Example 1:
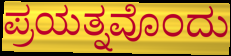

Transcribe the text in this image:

ಪ್ರಯತ್ನವೊಂದು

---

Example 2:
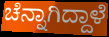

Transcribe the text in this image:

ಚೆನ್ನಾಗಿದ್ದಾಳೆ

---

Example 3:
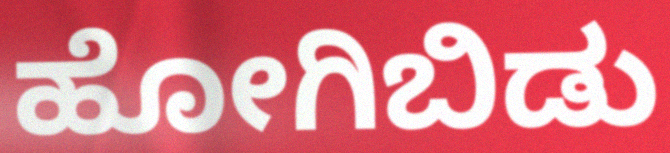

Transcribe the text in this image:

ಹೋಗಿಬಿಡು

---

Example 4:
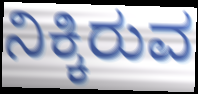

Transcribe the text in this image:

ನಿಕ್ಕಿರುವ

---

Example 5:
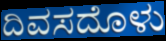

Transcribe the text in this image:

ದಿವಸದೊಳು